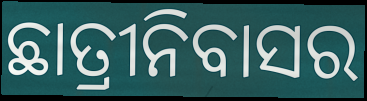
ଛାତ୍ରୀନିବାସର